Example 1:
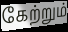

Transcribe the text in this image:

கேற்றும்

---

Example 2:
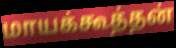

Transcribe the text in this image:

மாயக்கூத்தன்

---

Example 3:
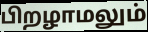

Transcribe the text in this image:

பிறழாமலும்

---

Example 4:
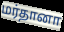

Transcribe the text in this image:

மர்தானா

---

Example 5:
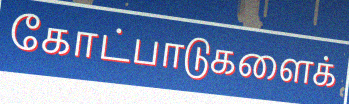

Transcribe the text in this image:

கோட்பாடுகளைக்